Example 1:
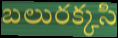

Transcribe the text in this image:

బలురక్కసి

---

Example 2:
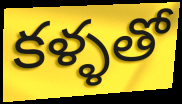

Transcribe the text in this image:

కళ్ళతో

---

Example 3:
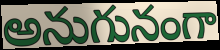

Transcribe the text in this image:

అనుగునంగా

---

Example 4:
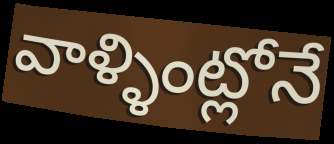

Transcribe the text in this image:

వాళ్ళింట్లోనే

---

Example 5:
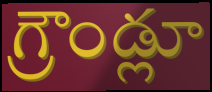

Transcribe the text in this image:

గ్రౌండ్లూ